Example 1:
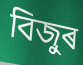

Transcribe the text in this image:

বিজুৰ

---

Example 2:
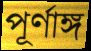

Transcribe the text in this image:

পূৰ্ণাঙ্গ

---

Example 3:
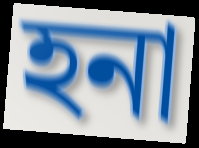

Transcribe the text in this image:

হনা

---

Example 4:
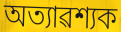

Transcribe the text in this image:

অত্যাৱশ্যক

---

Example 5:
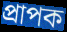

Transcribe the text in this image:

প্ৰাপক